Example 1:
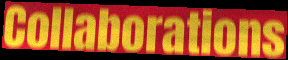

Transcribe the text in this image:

Collaborations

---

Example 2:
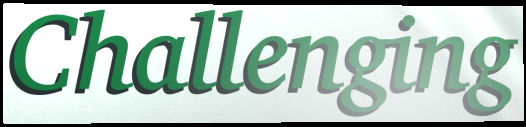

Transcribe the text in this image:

Challenging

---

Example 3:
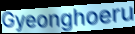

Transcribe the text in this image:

Gyeonghoeru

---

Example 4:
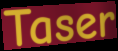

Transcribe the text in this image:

Taser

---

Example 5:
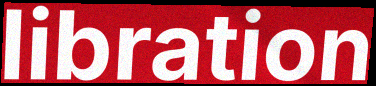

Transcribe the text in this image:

libration